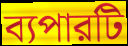
ব্যপারটি